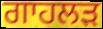
ਗਾਹਲੜ